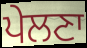
ਪੇਲਣਾ